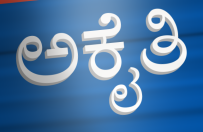
ಅಕೈತಿ